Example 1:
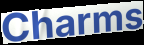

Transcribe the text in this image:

Charms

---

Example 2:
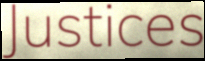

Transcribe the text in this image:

Justices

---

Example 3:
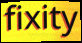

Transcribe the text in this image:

fixity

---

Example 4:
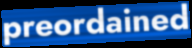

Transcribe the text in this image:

preordained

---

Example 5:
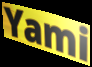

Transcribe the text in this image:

Yami